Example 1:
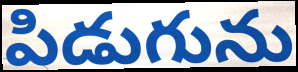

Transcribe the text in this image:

పిడుగును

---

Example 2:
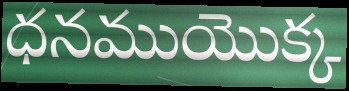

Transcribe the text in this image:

ధనముయొక్క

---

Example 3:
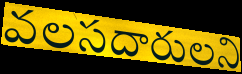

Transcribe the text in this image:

వలసదారులని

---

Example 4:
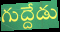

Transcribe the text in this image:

గుద్దేడు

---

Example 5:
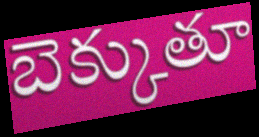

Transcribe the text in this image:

బెక్కుతూ